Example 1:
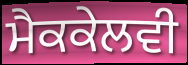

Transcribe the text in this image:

ਮੈਕਕੇਲਵੀ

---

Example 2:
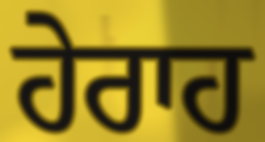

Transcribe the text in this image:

ਹੇਰਾਹ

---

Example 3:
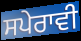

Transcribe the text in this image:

ਸਪੇਰਾਵੀ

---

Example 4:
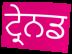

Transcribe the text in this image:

ਟ੍ਰੇਨਡ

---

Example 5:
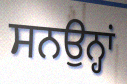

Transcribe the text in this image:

ਸਨਉਨ੍ਹਾਂ